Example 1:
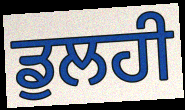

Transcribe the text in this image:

ਡੁਲਹੀ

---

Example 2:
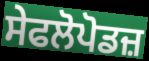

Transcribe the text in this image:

ਸੇਫਲੋਪੋਡਜ਼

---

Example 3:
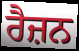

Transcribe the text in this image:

ਰੈਜ਼ਨ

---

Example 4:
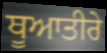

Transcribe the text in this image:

ਥੂਆਤੀਰੇ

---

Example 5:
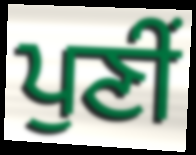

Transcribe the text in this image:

ਪੁਣੀਂ